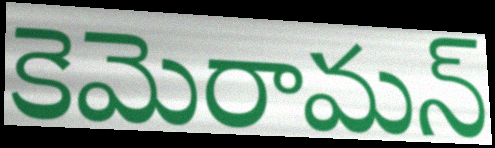
కెమెరామన్